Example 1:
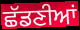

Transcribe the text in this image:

ਛੱਡਣੀਆਂ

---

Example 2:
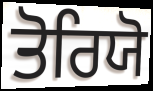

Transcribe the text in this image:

ਤੋਰਿਯੋ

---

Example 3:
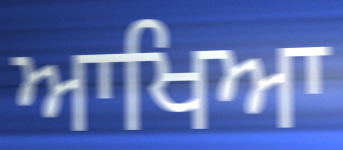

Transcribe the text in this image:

ਆਖਿਆ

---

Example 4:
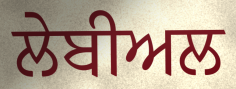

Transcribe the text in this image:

ਲੇਬੀਅਲ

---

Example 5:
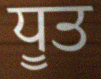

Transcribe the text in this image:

ਧੂਤ